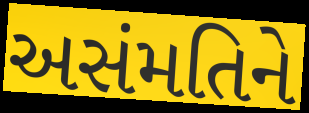
અસંમતિને